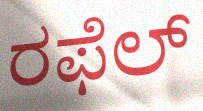
ರಫೆಲ್